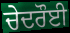
ਚੇਦਰੌਈ